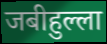
जबीहुल्ला